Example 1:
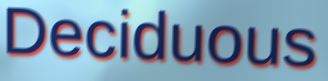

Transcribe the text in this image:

Deciduous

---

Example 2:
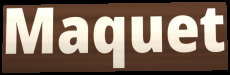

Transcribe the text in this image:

Maquet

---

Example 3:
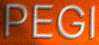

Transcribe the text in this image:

PEGI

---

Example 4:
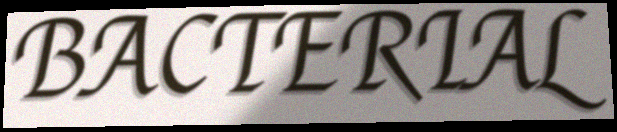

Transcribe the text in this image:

BACTERIAL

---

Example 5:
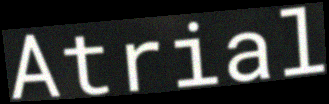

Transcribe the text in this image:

Atrial